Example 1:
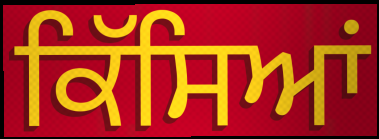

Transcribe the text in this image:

ਕਿੱਸਿਆਂ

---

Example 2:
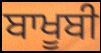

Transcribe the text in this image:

ਬਾਖੂਬੀ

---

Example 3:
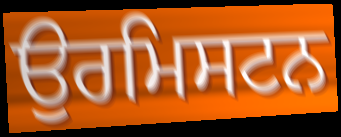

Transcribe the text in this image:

ਉਰਮਿਸਟਨ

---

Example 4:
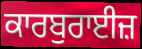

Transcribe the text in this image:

ਕਾਰਬੁਰਾਈਜ਼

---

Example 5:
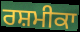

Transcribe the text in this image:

ਰਸ਼ਮੀਕਾ